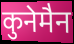
कुनेमैन